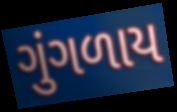
ગુંગળાય